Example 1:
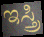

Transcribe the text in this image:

ಇಸ್ತ್ರಿ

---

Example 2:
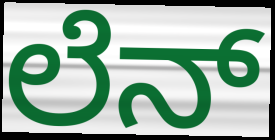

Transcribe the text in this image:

ಲೆನ್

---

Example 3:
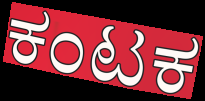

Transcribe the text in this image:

ಕಂಟಕ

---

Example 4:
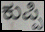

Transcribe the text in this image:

ಕುಪ್ಪಿ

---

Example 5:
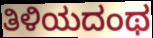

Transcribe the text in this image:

ತಿಳಿಯದಂಥ